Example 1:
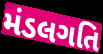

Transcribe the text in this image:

મંડલગતિ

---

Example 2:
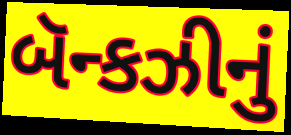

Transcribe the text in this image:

બૅન્કઝીનું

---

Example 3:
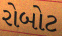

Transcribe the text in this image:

રોબોટ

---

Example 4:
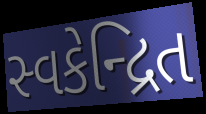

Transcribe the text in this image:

સ્વકેન્દ્રિત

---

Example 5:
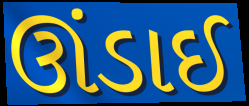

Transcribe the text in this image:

ઊંડાઈ